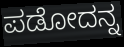
ಪಡೋದನ್ನ